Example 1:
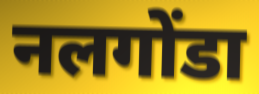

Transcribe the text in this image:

नलगोंडा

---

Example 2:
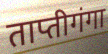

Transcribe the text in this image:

ताप्तीगंगा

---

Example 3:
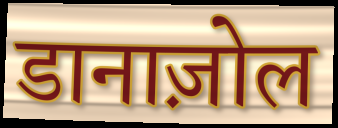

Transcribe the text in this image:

डानाज़ोल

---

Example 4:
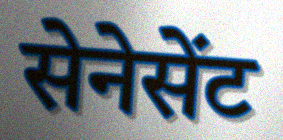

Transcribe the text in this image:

सेनेसेंट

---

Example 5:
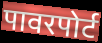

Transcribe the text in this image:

पावरपोर्ट